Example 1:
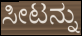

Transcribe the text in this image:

ಸೀಟನ್ನು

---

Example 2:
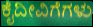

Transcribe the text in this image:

ಕೈದೀವಿಗೆಗಳು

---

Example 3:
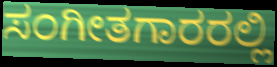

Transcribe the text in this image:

ಸಂಗೀತಗಾರರಲ್ಲಿ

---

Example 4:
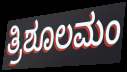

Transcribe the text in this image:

ತ್ರಿಶೂಲಮಂ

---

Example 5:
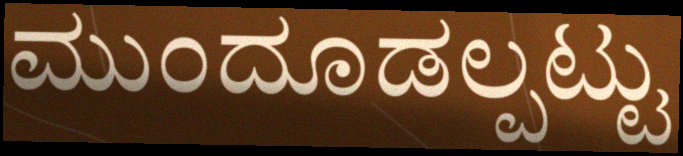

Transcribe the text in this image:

ಮುಂದೂಡಲ್ಪಟ್ಟು